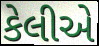
કેલીએ